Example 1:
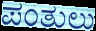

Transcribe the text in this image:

ಪಂತುಲು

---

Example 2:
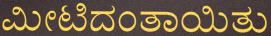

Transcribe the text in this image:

ಮೀಟಿದಂತಾಯಿತು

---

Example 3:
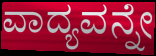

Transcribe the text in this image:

ವಾದ್ಯವನ್ನೇ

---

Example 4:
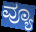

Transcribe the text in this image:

ವ್ಯೂ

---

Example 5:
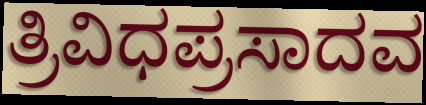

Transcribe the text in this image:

ತ್ರಿವಿಧಪ್ರಸಾದವ